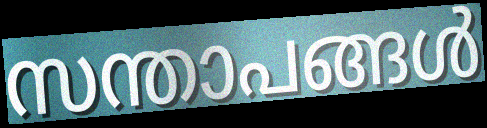
സന്താപങ്ങൾ